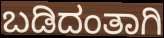
ಬಡಿದಂತಾಗಿ